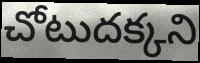
చోటుదక్కని